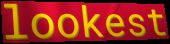
lookest